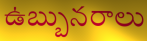
ఉబ్బునరాలు